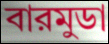
বারমুডা